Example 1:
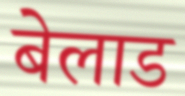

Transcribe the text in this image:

बेलाड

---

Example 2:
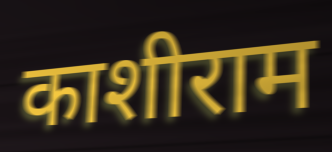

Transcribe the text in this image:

काशीराम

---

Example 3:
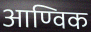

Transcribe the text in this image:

आण्विक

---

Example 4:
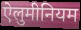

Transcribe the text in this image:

ऐलुमीनियम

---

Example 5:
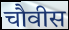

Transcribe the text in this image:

चौवीस